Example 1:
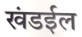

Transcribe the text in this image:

खंडईल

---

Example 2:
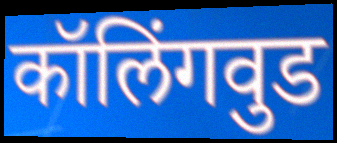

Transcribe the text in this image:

कॉलिंगवुड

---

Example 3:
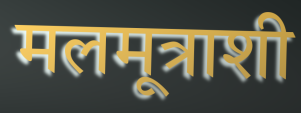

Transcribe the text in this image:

मलमूत्राशी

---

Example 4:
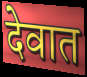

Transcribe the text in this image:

देवात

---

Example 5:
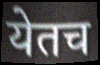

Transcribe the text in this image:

येतच